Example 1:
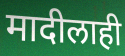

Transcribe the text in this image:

मादीलाही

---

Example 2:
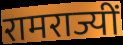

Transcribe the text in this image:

रामराज्यीं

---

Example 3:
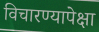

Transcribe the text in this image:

विचारण्यापेक्षा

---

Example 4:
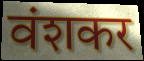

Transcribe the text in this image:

वंशकर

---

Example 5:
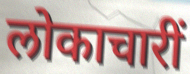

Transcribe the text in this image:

लोकाचारीं